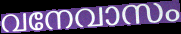
വനേവാസം